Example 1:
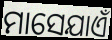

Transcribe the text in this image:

ମାସେଯାଏଁ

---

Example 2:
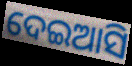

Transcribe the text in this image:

ଦେଇଆସି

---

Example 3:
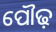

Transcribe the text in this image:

ପୌଢ଼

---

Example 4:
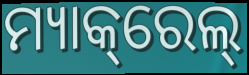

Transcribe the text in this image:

ମ୍ୟାକ୍‌ରେଲ୍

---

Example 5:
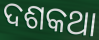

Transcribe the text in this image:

ଦଶକଥା